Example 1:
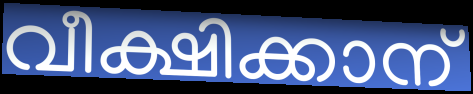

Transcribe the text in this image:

വീക്ഷിക്കാന്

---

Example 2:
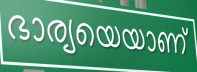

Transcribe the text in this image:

ഭാര്യയെയാണ്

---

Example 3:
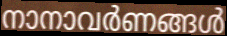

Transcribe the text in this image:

നാനാവർണങ്ങൾ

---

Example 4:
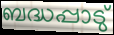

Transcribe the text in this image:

ബദ്ധപ്പാടു്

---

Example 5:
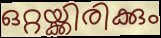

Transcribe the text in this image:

ഒറ്റയ്ക്കിരിക്കും